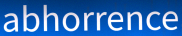
abhorrence